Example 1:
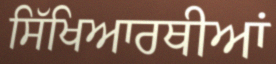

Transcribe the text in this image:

ਸਿੱਖਿਆਰਥੀਆਂ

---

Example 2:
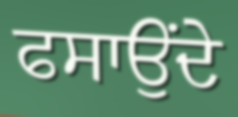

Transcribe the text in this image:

ਫਸਾਉਂਦੇ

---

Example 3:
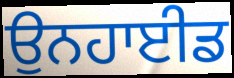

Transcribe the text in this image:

ਉਨਹਾਈਡ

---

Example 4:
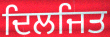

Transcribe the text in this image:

ਦਿਲਜਿਤ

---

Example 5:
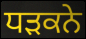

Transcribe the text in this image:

ਧਡ਼ਕਨੇ